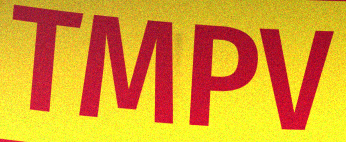
TMPV